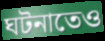
ঘটনাতেও